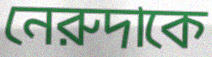
নেরুদাকে